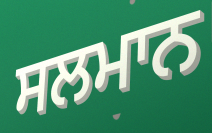
ਸਲਮਾਨ